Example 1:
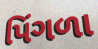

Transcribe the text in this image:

પિંગળા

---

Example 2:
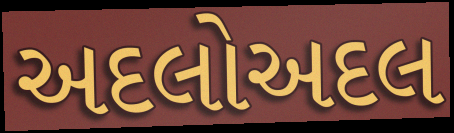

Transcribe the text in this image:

અદલોઅદલ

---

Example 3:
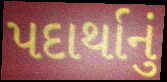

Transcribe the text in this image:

પદાર્થાનું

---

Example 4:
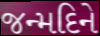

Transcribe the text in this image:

જન્મદિને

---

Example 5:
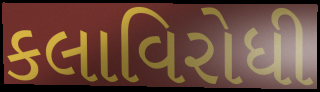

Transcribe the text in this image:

કલાવિરોધી